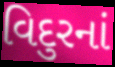
વિદુરનાં